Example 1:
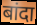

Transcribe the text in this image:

बांदा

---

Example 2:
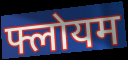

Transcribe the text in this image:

फ्लोयम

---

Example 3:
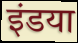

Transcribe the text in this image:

इंडया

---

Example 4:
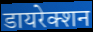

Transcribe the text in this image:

डायरेक्शन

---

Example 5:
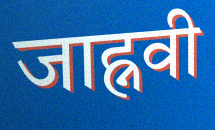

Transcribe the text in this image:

जाह्नवी